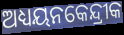
ଅଧ୍ୟୟନକେନ୍ଦ୍ରୀକ